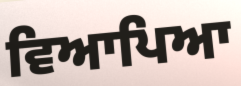
ਵਿਆਪਿਆ